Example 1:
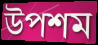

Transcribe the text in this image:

উপশম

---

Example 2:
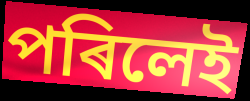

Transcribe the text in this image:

পৰিলেই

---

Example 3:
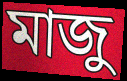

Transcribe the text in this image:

মাজু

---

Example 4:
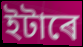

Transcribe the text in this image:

ইটাৰে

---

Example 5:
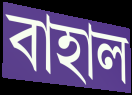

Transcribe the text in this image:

বাহাল